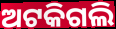
ଅଟକିଗଲି